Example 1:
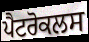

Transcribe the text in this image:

ਪੈਟਰੋਕਲਸ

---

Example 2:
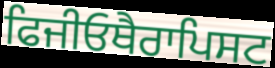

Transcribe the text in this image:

ਫਿਜੀਓਥੈਰਾਪਿਸਟ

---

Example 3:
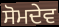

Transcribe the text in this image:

ਸੋਮਦੇਵ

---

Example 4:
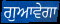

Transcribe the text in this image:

ਗੁਆਵੇਗਾ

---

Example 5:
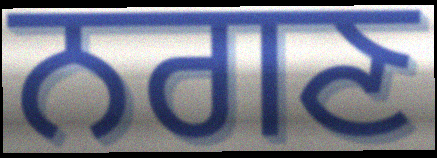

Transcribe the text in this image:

ਨਗਣ